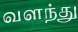
வளந்து